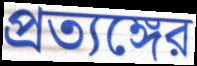
প্রত্যঙ্গের